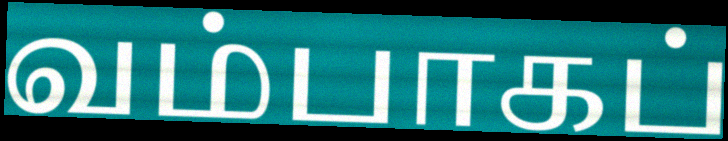
வம்பாகப்